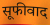
सूफीवाद